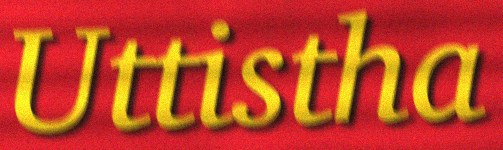
Uttistha